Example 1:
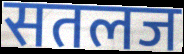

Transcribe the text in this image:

सतलज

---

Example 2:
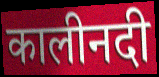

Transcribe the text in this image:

कालीनदी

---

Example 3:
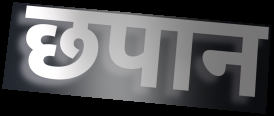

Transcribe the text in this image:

छपान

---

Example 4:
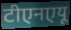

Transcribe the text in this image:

टीएनएयू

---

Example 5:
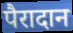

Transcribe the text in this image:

पैरादान